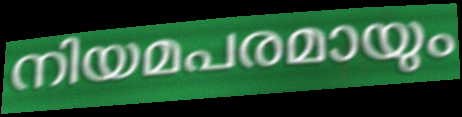
നിയമപരമായും